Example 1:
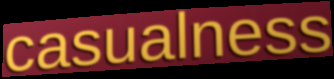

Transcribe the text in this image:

casualness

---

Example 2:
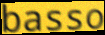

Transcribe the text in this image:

basso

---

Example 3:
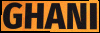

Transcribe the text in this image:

GHANI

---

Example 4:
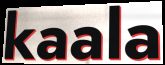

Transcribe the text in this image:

kaala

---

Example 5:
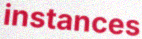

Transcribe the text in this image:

instances